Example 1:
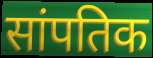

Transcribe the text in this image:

सांपतिक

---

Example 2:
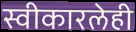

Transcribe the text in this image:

स्वीकारलेही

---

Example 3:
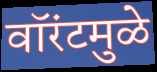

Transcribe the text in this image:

वॉरंटमुळे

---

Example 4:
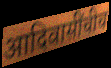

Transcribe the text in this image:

आदिवासींचीच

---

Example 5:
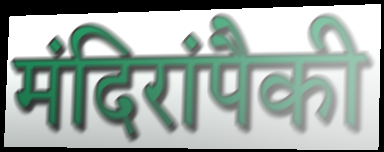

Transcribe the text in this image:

मंदिरांपैकी